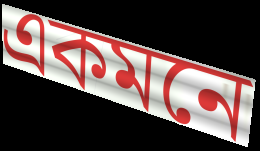
একমনে